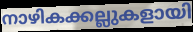
നാഴികക്കല്ലുകളായി